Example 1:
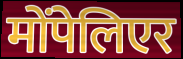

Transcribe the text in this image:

मोंपेलिएर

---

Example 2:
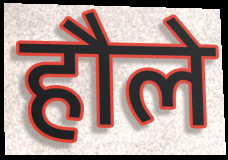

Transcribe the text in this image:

हौले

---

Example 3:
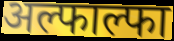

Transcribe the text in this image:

अल्फाल्फा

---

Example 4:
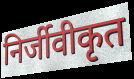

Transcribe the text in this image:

निर्जीवीकृत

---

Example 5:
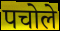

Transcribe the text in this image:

पचोले